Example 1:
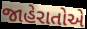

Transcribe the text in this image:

જાહેરાતોએ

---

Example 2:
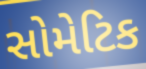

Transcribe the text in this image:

સોમેટિક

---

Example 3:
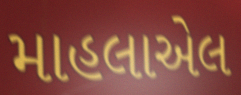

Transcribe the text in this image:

માહલાએલ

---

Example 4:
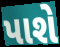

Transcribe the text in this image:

પાશે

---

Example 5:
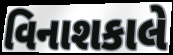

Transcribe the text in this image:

વિનાશકાલે